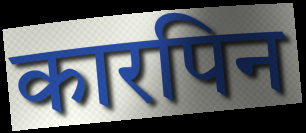
कारपिन